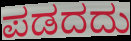
ಪಡದದು